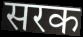
सरक